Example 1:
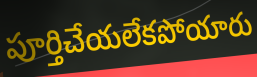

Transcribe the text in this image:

పూర్తిచేయలేకపోయారు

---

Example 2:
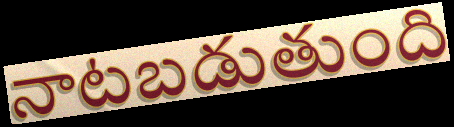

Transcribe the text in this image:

నాటబడుతుంది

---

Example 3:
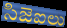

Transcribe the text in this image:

సిజెఐలు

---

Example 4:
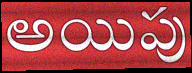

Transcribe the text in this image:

అయిపు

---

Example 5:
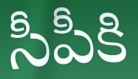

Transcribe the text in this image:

సీపీకి